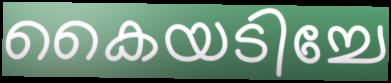
കൈയടിച്ചേ